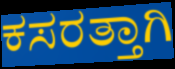
ಕಸರತ್ತಾಗಿ